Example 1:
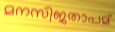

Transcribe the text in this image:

മനസിജതാപമ്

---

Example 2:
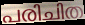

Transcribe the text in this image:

പരിചിത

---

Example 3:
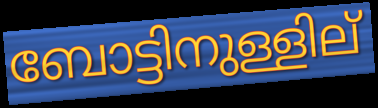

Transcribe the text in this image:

ബോട്ടിനുള്ളില്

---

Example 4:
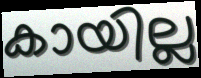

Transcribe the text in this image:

കായില്ല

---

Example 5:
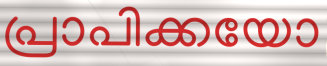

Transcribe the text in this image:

പ്രാപിക്കയോ